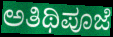
ಅತಿಥಿಪೂಜೆ